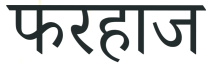
फरहाज